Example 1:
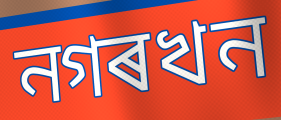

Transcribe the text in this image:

নগৰখন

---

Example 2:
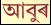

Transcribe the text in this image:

আবুৰ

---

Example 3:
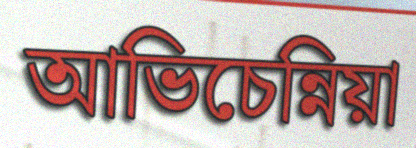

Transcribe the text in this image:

আভিচেন্নিয়া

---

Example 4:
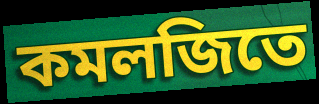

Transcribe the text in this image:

কমলজিতে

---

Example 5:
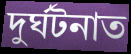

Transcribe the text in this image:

দুৰ্ঘটনাত